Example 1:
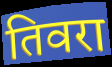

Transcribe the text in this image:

तिवरा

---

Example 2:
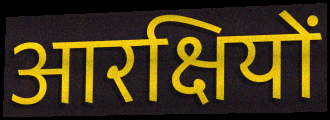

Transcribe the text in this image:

आरक्षियों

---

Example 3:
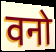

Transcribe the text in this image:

वनो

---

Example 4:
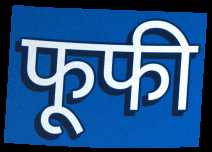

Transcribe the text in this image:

फूफी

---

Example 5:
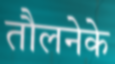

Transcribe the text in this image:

तौलनेके